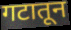
गटातून